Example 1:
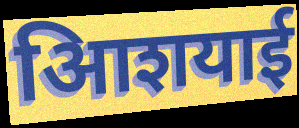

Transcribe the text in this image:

आिशयाई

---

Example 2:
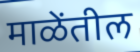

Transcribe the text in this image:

माळेंतील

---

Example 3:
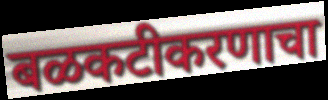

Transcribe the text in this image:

बळकटीकरणाचा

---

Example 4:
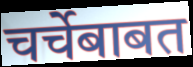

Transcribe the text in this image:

चर्चेबाबत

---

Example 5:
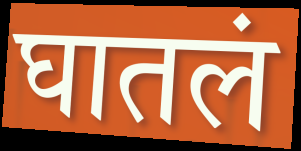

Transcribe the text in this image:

घातलं